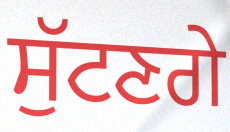
ਸੁੱਟਣਗੇ